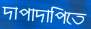
দাপাদাপিতে